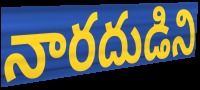
నారదుడిని